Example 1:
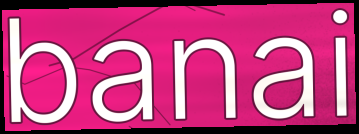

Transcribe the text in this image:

banai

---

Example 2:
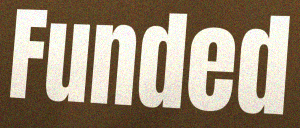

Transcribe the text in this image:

Funded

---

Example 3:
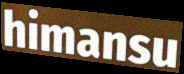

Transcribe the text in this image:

himansu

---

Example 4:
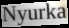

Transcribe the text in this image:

Nyurka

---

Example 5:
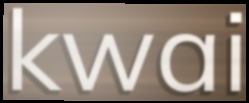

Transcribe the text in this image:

kwai